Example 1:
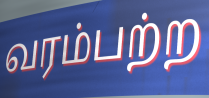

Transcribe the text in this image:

வரம்பற்ற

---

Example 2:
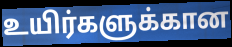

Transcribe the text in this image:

உயிர்களுக்கான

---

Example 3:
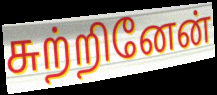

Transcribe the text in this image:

சுற்றினேன்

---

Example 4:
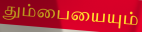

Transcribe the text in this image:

தும்பையையும்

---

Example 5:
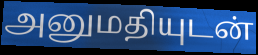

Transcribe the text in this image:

அனுமதியுடன்